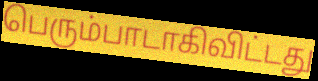
பெரும்பாடாகிவிட்டது